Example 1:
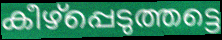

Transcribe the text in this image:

കീഴ്പ്പെടുത്തട്ടെ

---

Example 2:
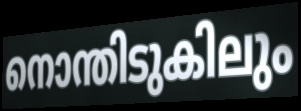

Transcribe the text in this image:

നൊന്തിടുകിലും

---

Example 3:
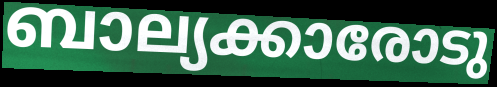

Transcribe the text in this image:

ബാല്യക്കാരോടു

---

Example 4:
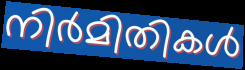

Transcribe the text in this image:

നിർമിതികൾ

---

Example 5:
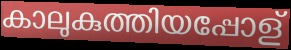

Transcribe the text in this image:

കാലുകുത്തിയപ്പോള്